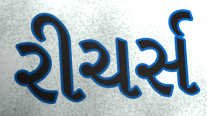
રીચર્સ